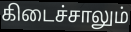
கிடைச்சாலும்